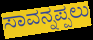
ಸಾವನ್ನಪ್ಪಲು